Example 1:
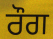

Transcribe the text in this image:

ਰੌਗ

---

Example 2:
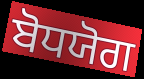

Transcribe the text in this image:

ਬੋਧਯੋਗ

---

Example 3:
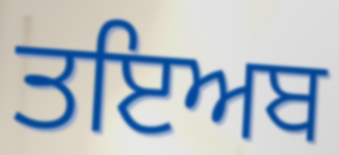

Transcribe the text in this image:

ਤਇਅਬ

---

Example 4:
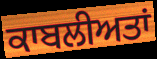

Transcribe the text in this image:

ਕਾਬਲੀਅਤਾਂ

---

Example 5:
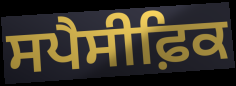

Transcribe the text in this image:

ਸਪੈਸੀਫ਼ਿਕ